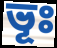
ভূঃ